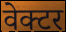
वेक्टर